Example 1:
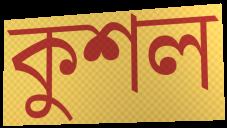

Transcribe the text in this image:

কুশল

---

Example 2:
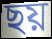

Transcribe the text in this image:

ছয়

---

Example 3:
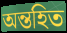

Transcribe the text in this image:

অন্তহিত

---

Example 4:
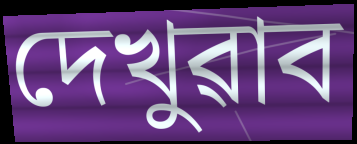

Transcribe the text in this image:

দেখুৱাব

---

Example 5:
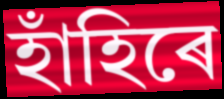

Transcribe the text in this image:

হাঁহিৰে